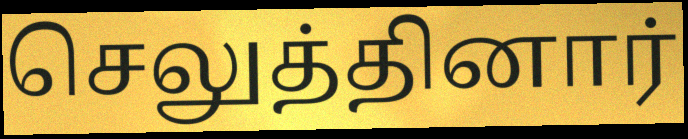
செலுத்தினார்